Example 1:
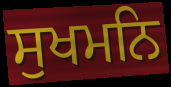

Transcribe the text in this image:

ਸੁਖਮਨਿ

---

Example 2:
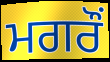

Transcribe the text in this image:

ਮਗਰੌਂ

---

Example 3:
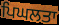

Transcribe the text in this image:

ਪਿਘਲਤਾ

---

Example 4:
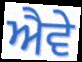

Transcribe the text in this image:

ਐਵੇ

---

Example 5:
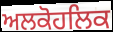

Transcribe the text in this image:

ਅਲਕੋਹਲਿਕ